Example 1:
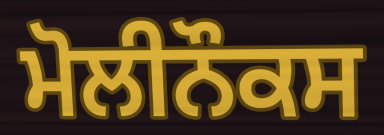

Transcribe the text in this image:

ਮੋਲੀਨੌਕਸ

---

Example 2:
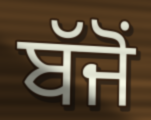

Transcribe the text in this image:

ਬੱਜੋਂ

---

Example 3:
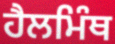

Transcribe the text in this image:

ਹੈਲਮਿੰਥ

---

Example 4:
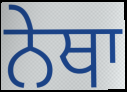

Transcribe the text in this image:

ਨੇਥਾ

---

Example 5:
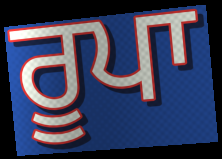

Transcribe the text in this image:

ਰੂਪਾ